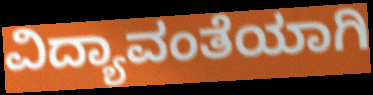
ವಿದ್ಯಾವಂತೆಯಾಗಿ